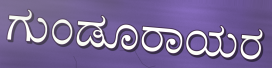
ಗುಂಡೂರಾಯರ